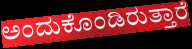
ಅಂದುಕೊಂಡಿರುತ್ತಾರೆ